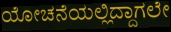
ಯೋಚನೆಯಲ್ಲಿದ್ದಾಗಲೇ